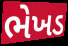
ભેખડ